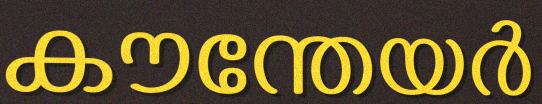
കൗന്തേയർ